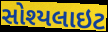
સોશ્યલાઇટ